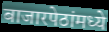
बाजारपेठांमध्ये